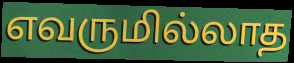
எவருமில்லாத